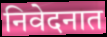
निवेदनात